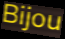
Bijou